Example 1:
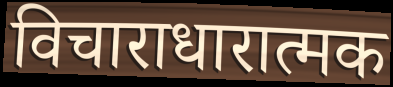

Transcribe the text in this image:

विचाराधारात्मक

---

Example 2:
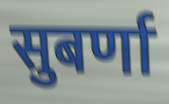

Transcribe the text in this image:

सुबर्णा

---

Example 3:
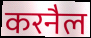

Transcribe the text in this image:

करनैल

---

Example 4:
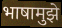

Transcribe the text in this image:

भाषामुझे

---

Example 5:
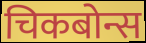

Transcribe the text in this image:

चिकबोन्स